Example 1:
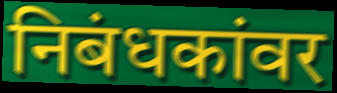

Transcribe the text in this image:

निबंधकांवर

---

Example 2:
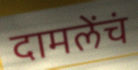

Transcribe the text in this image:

दामलेंचं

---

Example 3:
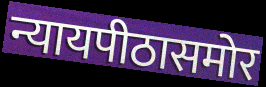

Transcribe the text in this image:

न्यायपीठासमोर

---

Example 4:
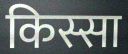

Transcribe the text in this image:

किस्सा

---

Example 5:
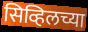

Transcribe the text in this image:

सिव्हिलच्या